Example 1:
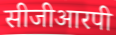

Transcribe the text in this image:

सीजीआरपी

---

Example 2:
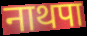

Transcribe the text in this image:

नाथपा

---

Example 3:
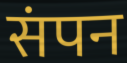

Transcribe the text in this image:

संपन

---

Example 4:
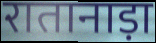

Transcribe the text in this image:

रातानाड़ा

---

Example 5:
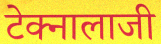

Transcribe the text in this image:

टेक्नालाजी